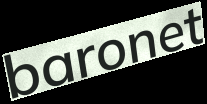
baronet